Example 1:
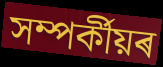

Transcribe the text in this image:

সম্পৰ্কীয়ৰ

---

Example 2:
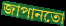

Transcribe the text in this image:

জাপানতো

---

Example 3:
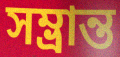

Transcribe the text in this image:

সম্ভ্ৰান্ত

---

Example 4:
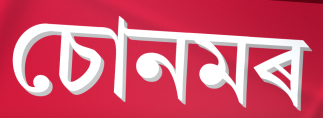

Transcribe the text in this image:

চোনমৰ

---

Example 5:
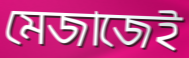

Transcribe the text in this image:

মেজাজেই